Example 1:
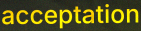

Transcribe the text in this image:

acceptation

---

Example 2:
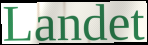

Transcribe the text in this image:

Landet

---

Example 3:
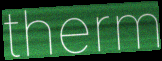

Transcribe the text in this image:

therm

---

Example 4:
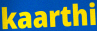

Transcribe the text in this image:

kaarthi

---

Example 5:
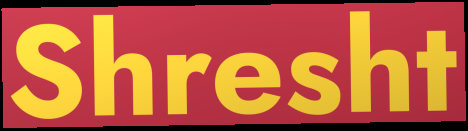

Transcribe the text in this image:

Shresht